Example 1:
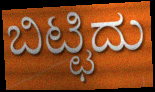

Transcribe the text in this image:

ಬಿಟ್ಟಿದು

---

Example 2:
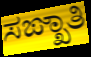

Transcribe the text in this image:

ಸಙ್ಖಾತಿ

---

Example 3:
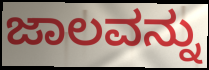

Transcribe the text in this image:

ಜಾಲವನ್ನು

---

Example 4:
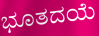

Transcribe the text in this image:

ಭೂತದಯೆ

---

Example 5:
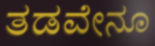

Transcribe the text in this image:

ತಡವೇನೂ